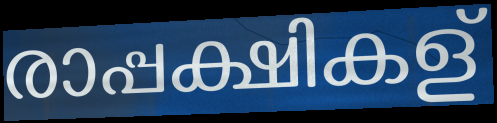
രാപ്പക്ഷികള്